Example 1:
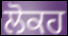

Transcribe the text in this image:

ਲੋਕਹ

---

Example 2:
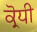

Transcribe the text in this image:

ਕ੍ਰੋਧੀ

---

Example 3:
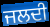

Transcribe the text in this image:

ਜਲਦੀ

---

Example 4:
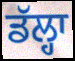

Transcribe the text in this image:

ਡੱਲ੍ਹਾ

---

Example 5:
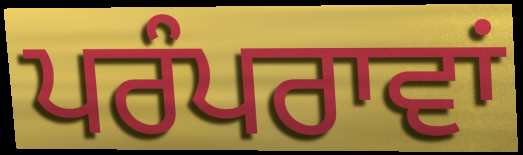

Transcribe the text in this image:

ਪਰੰਪਰਾਵਾਂ